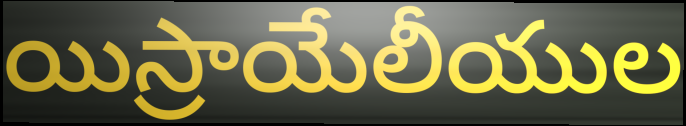
యిస్రాయేలీయుల